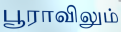
பூராவிலும்